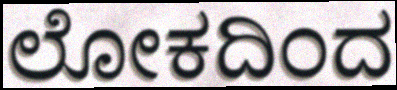
ಲೋಕದಿಂದ